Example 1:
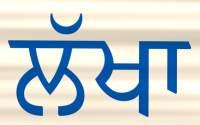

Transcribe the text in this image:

ਲੱਖਾ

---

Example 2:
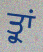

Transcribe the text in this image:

ਤ੍ਰ੍ਹਾਂ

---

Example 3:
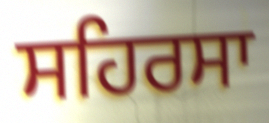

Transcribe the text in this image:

ਸਹਿਰਸਾ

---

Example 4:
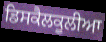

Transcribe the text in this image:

ਡਿਸਕੈਲਕੂਲੀਆ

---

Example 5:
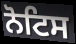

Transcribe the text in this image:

ਨੋਟਿਸ